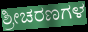
ಶ್ರೀಚರಣಗಳ